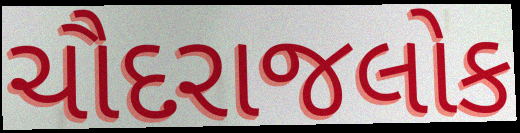
ચૌદરાજલોક